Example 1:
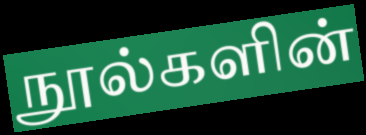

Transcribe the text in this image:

நூல்களின்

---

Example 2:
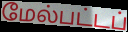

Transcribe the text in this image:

மேல்பட்டப்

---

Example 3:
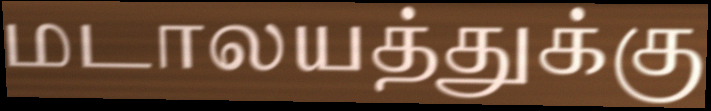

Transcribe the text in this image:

மடாலயத்துக்கு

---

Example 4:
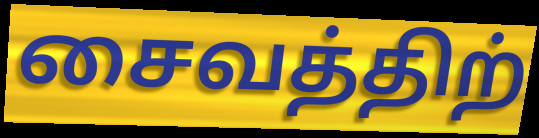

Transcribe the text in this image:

சைவத்திற்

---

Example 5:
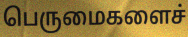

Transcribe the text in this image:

பெருமைகளைச்